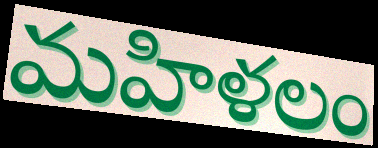
మహిళలం